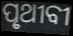
ପୃଥୀବୀ